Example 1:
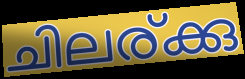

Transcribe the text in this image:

ചിലര്ക്കു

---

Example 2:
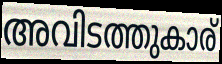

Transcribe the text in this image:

അവിടത്തുകാര്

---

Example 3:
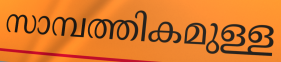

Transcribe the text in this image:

സാമ്പത്തികമുള്ള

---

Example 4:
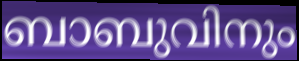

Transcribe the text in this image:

ബാബുവിനും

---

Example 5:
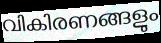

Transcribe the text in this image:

വികിരണങ്ങളും